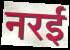
नरई